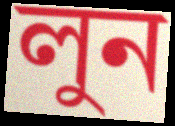
লুন